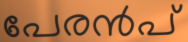
പേരൻപ്